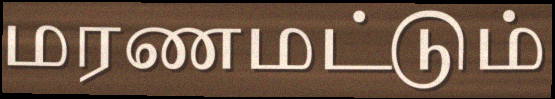
மரணமட்டும்